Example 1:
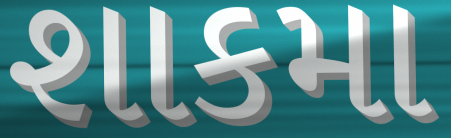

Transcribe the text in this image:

શાકમા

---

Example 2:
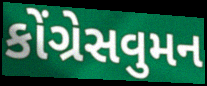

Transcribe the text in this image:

કોંગ્રેસવુમન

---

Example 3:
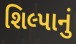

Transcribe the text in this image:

શિલ્પાનું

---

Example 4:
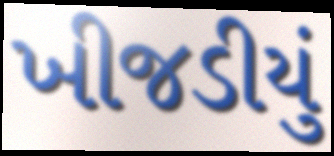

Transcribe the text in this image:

ખીજડીયું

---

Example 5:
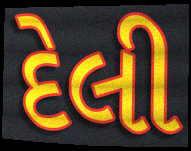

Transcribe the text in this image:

દેલી